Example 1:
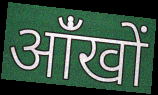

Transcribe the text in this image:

आंँखों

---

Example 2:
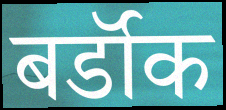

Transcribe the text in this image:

बर्डॉक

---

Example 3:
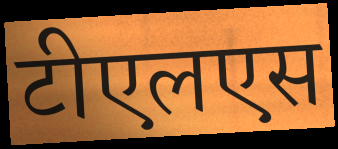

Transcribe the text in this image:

टीएलएस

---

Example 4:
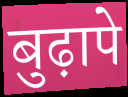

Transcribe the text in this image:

बुढ़ापे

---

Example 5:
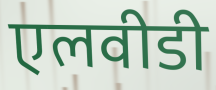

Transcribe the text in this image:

एलवीडी